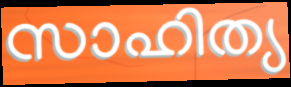
സാഹിത്യ